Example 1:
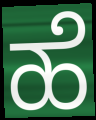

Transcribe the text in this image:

ಹೆ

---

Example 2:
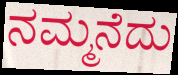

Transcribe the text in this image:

ನಮ್ಮನೆದು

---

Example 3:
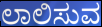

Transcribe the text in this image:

ಲಾಲಿಸುವ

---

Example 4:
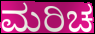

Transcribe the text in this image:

ಮರಿಚ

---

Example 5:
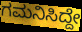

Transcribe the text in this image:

ಗಮನಿಸಿದ್ದೇ